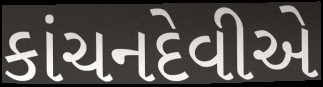
કાંચનદેવીએ